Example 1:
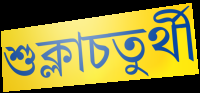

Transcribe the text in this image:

শুক্লাচতুৰ্থী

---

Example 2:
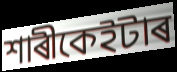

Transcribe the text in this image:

শাৰীকেইটাৰ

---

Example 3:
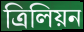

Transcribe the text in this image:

ত্ৰিলিয়ন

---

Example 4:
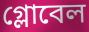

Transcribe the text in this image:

গ্লোবেল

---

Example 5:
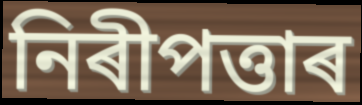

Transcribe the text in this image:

নিৰীপত্তাৰ